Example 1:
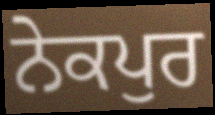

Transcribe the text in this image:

ਨੇਕਪੁਰ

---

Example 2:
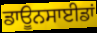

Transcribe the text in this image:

ਡਾਊਨਸਾਈਡਾਂ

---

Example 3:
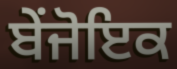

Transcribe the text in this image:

ਬੇਂਜੋਇਕ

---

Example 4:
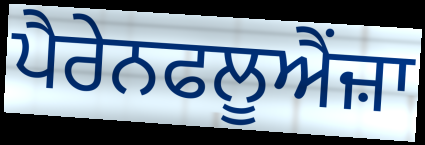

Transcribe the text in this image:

ਪੈਰੇਨਫਲੂਐਂਜ਼ਾ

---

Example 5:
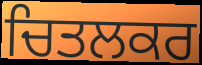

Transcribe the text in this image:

ਚਿਤਲਕਰ